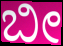
ಬೀ